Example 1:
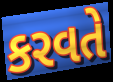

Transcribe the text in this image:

કરવતે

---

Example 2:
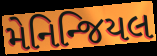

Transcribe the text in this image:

મેનિન્જિયલ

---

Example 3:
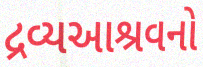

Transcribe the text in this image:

દ્રવ્યઆશ્રવનો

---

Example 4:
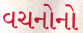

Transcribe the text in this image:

વચનોનો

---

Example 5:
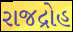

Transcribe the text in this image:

રાજદ્રોહ